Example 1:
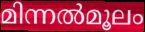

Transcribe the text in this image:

മിന്നൽമൂലം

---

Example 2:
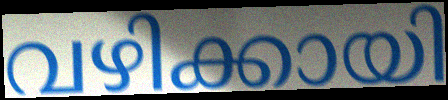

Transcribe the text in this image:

വഴിക്കായി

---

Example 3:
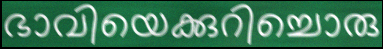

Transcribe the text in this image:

ഭാവിയെക്കുറിച്ചൊരു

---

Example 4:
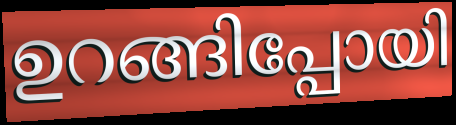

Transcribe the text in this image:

ഉറങ്ങിപ്പോയി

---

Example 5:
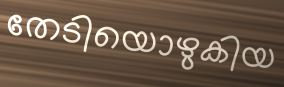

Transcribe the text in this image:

തേടിയൊഴുകിയ